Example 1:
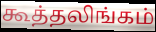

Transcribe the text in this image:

கூத்தலிங்கம்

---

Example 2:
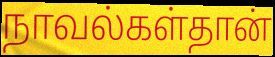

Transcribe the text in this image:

நாவல்கள்தான்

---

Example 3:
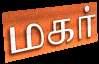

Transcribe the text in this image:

மகர்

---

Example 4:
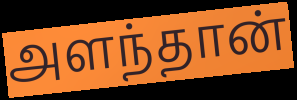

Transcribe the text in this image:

அளந்தான்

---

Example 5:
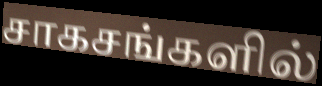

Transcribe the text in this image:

சாகசங்களில்